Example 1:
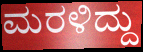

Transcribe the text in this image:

ಮರಳಿದ್ದು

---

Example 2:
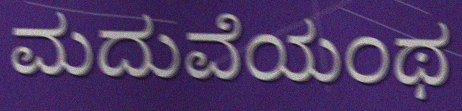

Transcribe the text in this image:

ಮದುವೆಯಂಥ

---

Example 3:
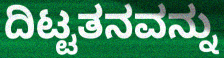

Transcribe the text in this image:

ದಿಟ್ಟತನವನ್ನು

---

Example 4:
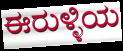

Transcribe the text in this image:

ಈರುಳ್ಳಿಯ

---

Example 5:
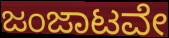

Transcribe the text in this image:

ಜಂಜಾಟವೇ